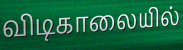
விடிகாலையில்